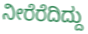
ನೀರೆರೆದಿದ್ದು